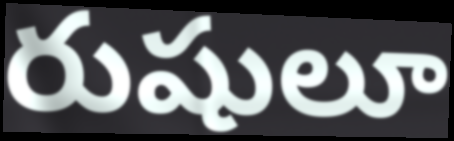
రుషులూ